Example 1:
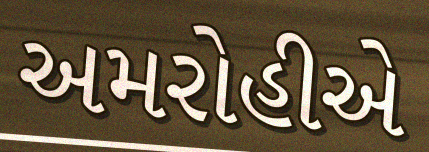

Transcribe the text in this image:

અમરોહીએ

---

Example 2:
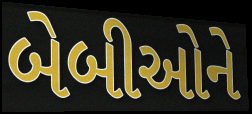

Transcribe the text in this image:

બેબીઓને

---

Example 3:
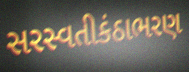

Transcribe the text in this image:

સરસ્વતીકંઠાભરણ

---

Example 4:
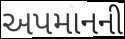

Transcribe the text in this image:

અપમાનની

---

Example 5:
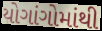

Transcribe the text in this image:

યોગાંગોમાંથી